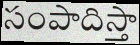
సంపాదిస్తా